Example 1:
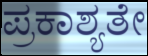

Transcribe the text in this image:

ಪ್ರಕಾಶ್ಯತೇ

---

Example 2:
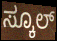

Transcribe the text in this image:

ಸ್ಕೂಲ್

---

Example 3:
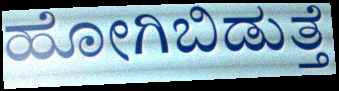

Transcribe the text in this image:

ಹೋಗಿಬಿಡುತ್ತೆ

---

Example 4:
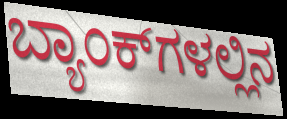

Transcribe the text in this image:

ಬ್ಯಾಂಕ್‌ಗಳಲ್ಲಿನ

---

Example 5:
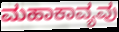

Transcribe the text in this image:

ಮಹಾಕಾವ್ಯವು